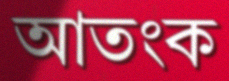
আতংক